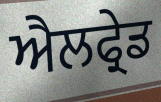
ਐਲਫ੍ਰੇਡ